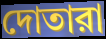
দোতারা